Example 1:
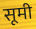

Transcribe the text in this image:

सूमी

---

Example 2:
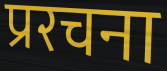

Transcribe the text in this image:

प्ररचना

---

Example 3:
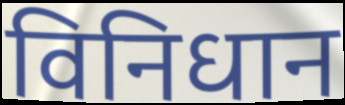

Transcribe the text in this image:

विनिधान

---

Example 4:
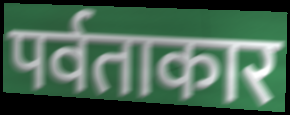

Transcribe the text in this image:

पर्वताकार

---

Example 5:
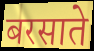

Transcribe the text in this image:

बरसाते